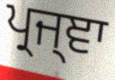
ਪ੍ਰਜ੍ਞਾ